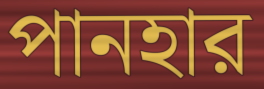
পানহার